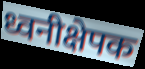
ध्वनीक्षेपक